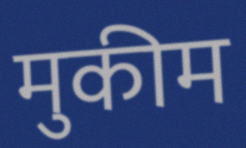
मुकीम